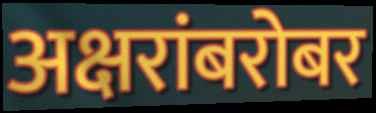
अक्षरांबरोबर